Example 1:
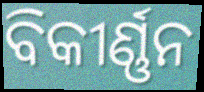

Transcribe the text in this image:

ବିକୀର୍ଣ୍ଣନ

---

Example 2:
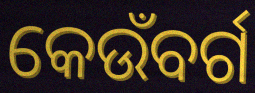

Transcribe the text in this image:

କେଉଁବର୍ଗ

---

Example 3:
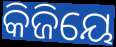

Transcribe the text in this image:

କିଜିୟେ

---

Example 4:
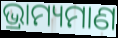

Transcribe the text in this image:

ଭ୍ରାମ୍ୟମାଣ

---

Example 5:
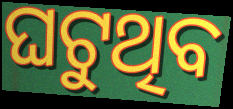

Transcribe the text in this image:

ଘଟୁଥିବ